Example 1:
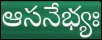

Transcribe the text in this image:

ఆసనేభ్యః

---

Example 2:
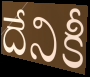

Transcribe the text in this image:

దేనికీ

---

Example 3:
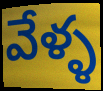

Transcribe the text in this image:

వేళ్ళ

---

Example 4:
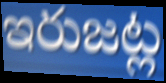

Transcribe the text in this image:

ఇరుజట్ల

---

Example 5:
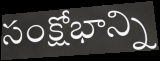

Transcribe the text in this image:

సంక్షోభాన్ని